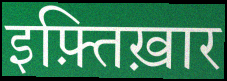
इफ़्तिख़ार